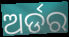
ଅର୍ଡର